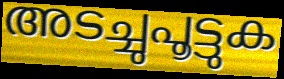
അടച്ചുപൂട്ടുക